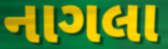
નાગલા